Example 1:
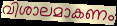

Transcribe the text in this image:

വിശാലമാകണം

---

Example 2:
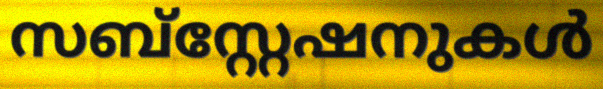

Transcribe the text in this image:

സബ്സ്റ്റേഷനുകൾ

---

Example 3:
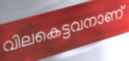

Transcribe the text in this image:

വിലകെട്ടവനാണ്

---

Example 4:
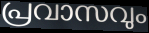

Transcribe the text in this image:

പ്രവാസവും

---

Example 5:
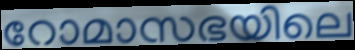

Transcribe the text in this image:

റോമാസഭയിലെ